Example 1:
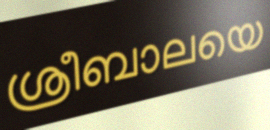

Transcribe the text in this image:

ശ്രീബാലയെ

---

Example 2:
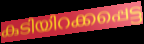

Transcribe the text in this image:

കുടിയിറക്കപ്പെട്ട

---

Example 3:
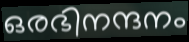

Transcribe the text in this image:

ഒരഭിനന്ദനം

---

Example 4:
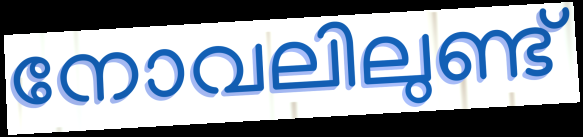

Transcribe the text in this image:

നോവലിലുണ്ട്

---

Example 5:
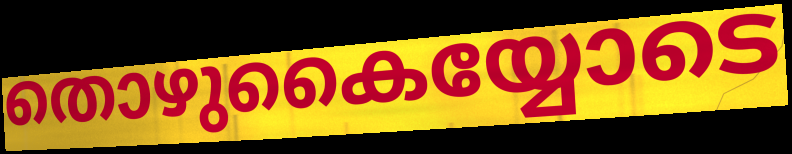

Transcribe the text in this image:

തൊഴുകൈയ്യോടെ